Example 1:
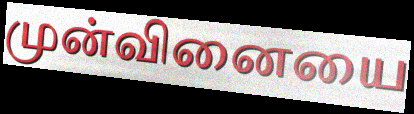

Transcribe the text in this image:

முன்வினையை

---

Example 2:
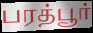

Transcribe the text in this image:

பரத்பூர்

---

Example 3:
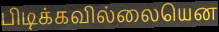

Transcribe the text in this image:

பிடிக்கவில்லையென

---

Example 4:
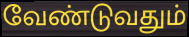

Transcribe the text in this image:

வேண்டுவதும்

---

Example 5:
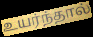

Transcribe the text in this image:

உயர்ந்தால்